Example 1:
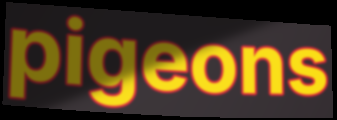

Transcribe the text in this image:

pigeons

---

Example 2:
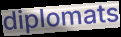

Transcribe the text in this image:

diplomats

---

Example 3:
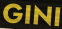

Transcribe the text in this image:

GINI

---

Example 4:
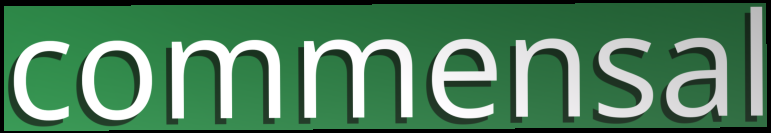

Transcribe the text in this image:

commensal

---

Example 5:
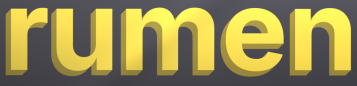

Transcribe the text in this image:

rumen